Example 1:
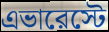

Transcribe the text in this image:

এভারেস্টে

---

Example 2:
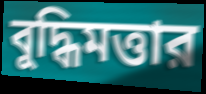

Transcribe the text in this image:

বুদ্ধিমত্তার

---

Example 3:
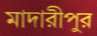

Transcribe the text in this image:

মাদারীপুর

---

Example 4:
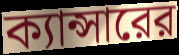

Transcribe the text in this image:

ক্যান্সারের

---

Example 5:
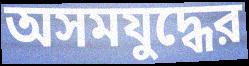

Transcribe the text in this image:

অসমযুদ্ধের